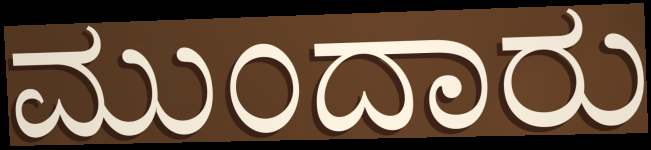
ಮುಂದಾರು